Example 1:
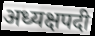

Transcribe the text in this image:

अध्यक्षपदी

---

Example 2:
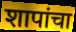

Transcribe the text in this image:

शापांचा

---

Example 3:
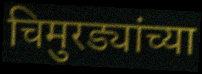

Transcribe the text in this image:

चिमुरड्यांच्या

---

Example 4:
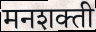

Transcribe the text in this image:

मनशक्ती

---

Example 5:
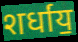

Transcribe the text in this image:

शर्धा॑य॒